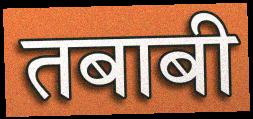
तबाबी